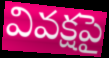
వివక్షపై